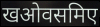
खओवसमिए